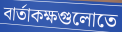
বার্তাকক্ষগুলোতে